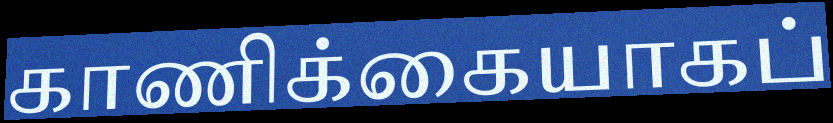
காணிக்கையாகப்